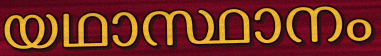
യഥാസ്ഥാനം